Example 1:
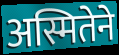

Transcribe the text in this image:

अस्मितेने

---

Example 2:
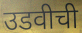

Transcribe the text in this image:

उडवीची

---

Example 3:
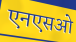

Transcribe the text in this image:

एनएसओ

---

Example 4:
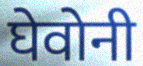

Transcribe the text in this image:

घेवोनी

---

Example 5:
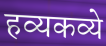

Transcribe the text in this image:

हव्यकव्ये